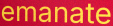
emanate